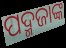
ପଦ୍ମଜାଙ୍କ